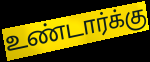
உண்டார்க்கு